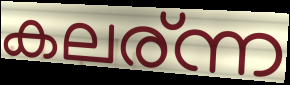
കലര്ന്ന